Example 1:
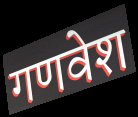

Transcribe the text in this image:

गणवेश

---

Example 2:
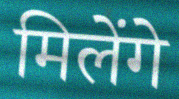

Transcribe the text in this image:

मिलेंगे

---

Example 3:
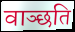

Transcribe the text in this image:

वाञ्छति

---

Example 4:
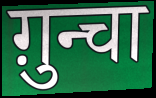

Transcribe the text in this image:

ग़ुन्चा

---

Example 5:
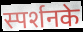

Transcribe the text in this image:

स्पर्शनके